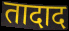
तादाद